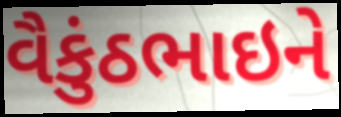
વૈકુંઠભાઇને